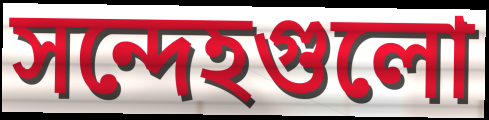
সন্দেহগুলো